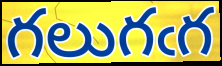
గలుగఁగ